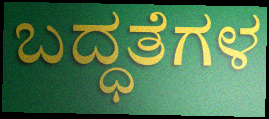
ಬದ್ಧತೆಗಳ